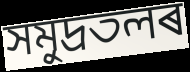
সমুদ্ৰতলৰ